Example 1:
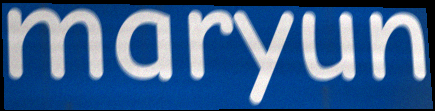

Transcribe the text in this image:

maryun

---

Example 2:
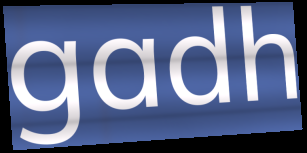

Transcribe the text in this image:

gadh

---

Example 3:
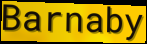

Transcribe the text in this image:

Barnaby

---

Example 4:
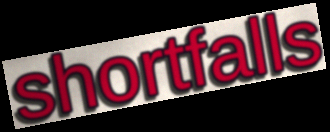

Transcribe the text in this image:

shortfalls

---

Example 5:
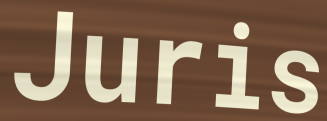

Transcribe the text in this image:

Juris